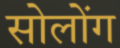
सोलोंग